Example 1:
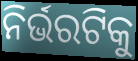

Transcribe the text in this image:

ନିର୍ଭରଟିକୁ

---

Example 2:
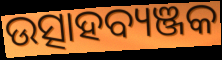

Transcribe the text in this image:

ଉତ୍ସାହବ୍ୟଞ୍ଜକ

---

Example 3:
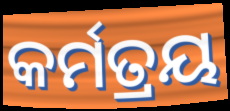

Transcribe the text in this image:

କର୍ମତ୍ରୟ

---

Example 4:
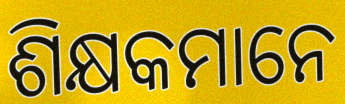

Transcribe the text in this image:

ଶିକ୍ଷକମାନେ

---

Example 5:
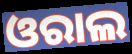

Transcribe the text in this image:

ଓରାଲ